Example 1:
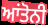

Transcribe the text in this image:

ਆਂਤੋਨੀ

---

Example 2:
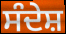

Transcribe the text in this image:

ਸੰਦੇਸ਼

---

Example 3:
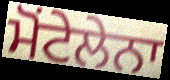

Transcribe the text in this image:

ਮੋਂਟੇਲੇਨਾ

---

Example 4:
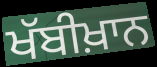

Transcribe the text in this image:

ਖੱਬੀਖ਼ਾਨ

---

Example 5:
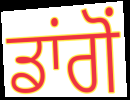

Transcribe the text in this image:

ਡਾਂਗੋਂ